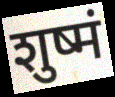
शुष्मं